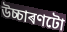
উচ্চাৰণটো